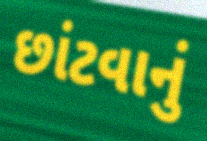
છાંટવાનું